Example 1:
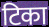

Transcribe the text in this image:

टिका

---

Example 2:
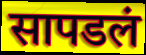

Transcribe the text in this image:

सापडलं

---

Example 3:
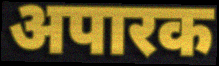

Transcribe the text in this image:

अपारक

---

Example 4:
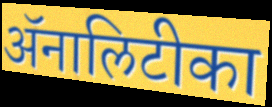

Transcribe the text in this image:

ॲनालिटीका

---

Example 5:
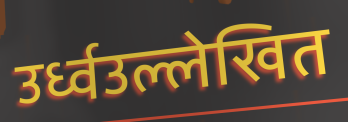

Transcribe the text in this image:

उर्ध्वउल्लेखित